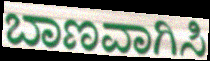
ಬಾಣವಾಗಿಸಿ